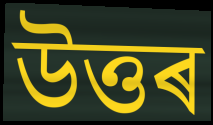
উত্তৰ